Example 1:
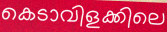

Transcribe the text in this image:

കെടാവിളക്കിലെ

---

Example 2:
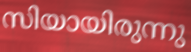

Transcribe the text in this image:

സിയായിരുന്നു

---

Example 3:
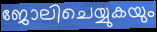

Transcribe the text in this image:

ജോലിചെയ്യുകയും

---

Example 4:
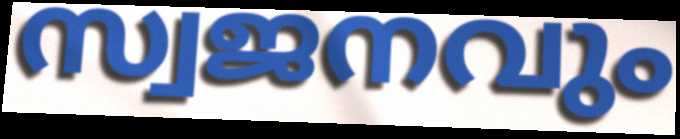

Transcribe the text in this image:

സ്വജനവും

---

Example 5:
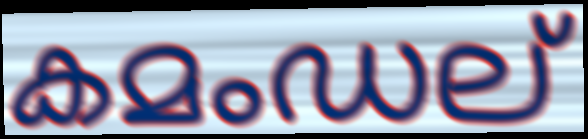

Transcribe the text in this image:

കമംഡല്